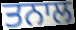
ਤਨਾਲ